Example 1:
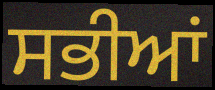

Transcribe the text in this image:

ਸਭੀਆਂ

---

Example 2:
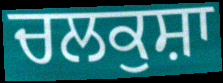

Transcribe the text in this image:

ਚਲਕੁਸ਼ਾ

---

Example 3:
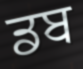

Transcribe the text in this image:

ਡਬ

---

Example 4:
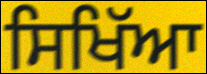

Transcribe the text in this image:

ਸਿਖਿੱਆ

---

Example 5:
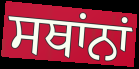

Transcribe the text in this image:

ਸਥਾਂਨਾਂ